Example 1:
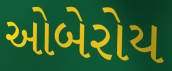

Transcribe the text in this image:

ઓબેરોય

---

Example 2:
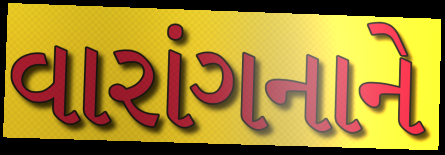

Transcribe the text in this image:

વારાંગનાને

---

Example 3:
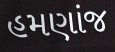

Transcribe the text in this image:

હમણાંજ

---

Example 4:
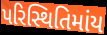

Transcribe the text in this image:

પરિસ્થિતિમાંય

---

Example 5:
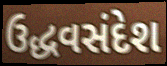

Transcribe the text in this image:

ઉદ્ધવસંદેશ